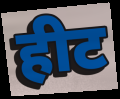
हीट